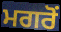
ਮਗਰੋਂ